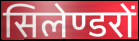
सिलेण्डरों